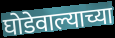
घोडेवाल्याच्या